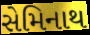
સેમિનાથ